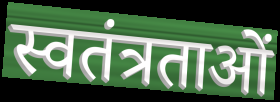
स्वतंत्रताओं